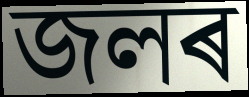
জলৰ